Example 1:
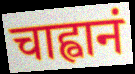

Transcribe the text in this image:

चाह्वानं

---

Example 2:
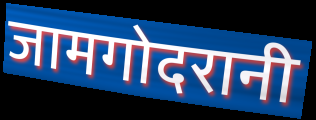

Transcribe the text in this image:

जामगोदरानी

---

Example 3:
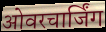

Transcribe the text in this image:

ओवरचार्जिंग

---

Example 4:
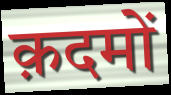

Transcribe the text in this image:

क़दमों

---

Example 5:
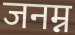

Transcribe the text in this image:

जनम्न